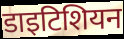
डाइटिशियन